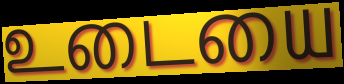
உடையை